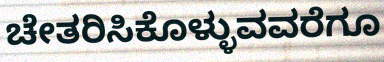
ಚೇತರಿಸಿಕೊಳ್ಳುವವರೆಗೂ